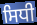
ਸਿਧੀ